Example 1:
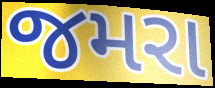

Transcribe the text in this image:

જમરા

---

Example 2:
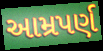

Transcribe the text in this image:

આમ્રપર્ણ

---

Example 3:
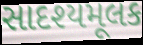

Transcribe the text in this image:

સાદશ્યમૂલક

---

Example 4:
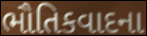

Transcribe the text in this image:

ભૌતિકવાદના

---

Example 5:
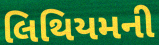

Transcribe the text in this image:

લિથિયમની